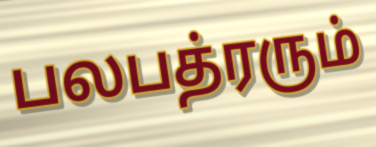
பலபத்ரரும்